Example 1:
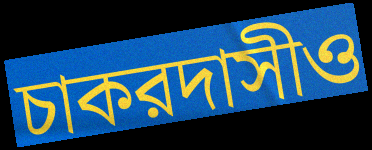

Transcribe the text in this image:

চাকরদাসীও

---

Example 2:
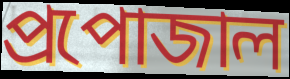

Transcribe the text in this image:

প্রপোজাল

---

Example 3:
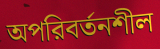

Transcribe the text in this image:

অপরিবর্তনশীল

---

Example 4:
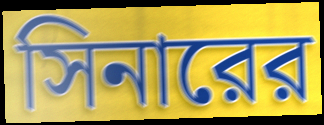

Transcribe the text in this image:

সিনারের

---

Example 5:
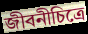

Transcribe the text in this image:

জীবনীচিত্রে